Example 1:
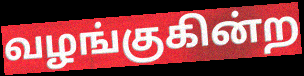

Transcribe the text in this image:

வழங்குகின்ற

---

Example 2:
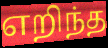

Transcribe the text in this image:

எறிந்த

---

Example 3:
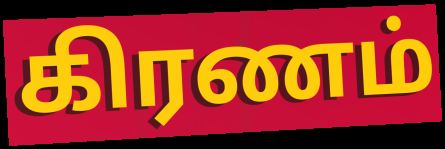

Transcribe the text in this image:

கிரணம்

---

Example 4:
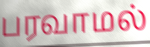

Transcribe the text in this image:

பரவாமல்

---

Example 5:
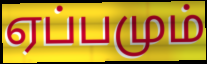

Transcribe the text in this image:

ஏப்பமும்